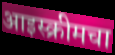
आइस्क्रीमचा